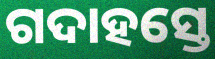
ଗଦାହସ୍ତେ